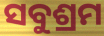
ସବୁଶ୍ରମ